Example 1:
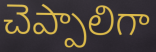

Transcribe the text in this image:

చెప్పాలిగా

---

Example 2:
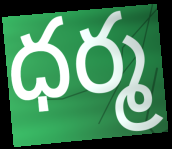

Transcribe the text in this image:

ధర్మ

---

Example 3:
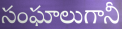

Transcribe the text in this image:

సంఘాలుగానీ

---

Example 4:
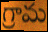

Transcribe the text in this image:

గ్రామ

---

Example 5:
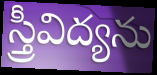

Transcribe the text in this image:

స్త్రీవిద్యను